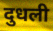
दुधली